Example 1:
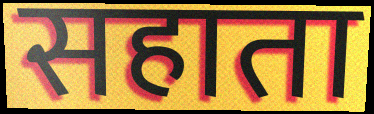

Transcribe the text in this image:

सहाता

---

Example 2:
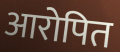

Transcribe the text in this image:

आरोपित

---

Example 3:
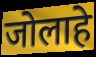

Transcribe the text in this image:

जोलाहे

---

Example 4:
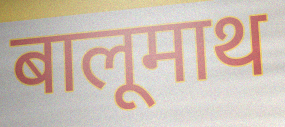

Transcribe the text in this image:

बालूमाथ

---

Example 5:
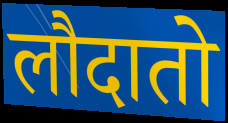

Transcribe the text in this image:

लौदातो